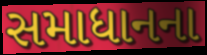
સમાધાનના